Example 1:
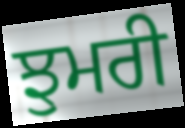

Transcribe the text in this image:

ਝੁਮਰੀ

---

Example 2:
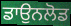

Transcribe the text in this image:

ਡਾਉਨਲੋਡ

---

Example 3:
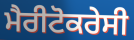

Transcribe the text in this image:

ਮੈਰੀਟੋਕਰੇਸੀ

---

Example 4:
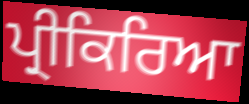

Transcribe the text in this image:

ਪ੍ਰੀਕਿਰਿਆ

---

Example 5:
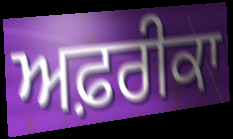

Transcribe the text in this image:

ਅਫ਼ਰੀਕਾ